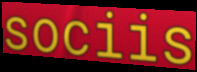
sociis